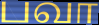
பவா